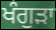
ਖੰਗੁੜਾ